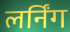
लर्निंग